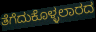
ತೆಗೆದುಕೊಳ್ಳಲಾರದ